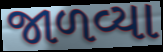
જાળવ્યા